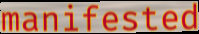
manifested